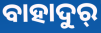
ବାହାଦୁର୍